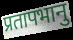
प्रतापभानु